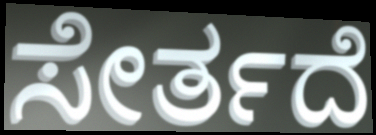
ಸೇರ್ತದೆ